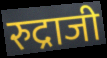
रुद्राजी